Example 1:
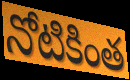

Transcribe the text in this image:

నోటికింత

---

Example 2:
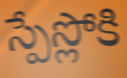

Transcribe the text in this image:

స్పేస్లోకి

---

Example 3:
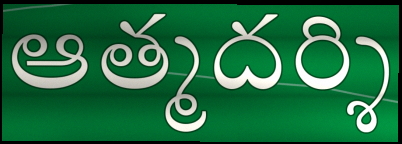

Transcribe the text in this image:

ఆత్మదర్శి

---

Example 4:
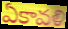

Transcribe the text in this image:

ఏకావళి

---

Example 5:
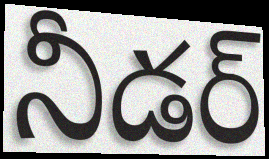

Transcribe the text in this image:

నీడర్